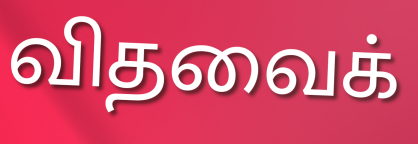
விதவைக்